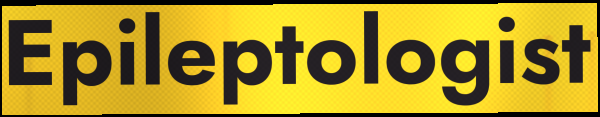
Epileptologist